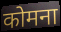
कोमना